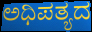
ಅಧಿಪತ್ಯದ